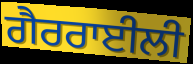
ਗੈਰਰਾਈਲੀ